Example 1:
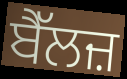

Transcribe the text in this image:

ਬੈੱਲਜ਼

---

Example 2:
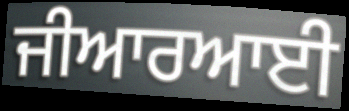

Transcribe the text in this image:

ਜੀਆਰਆਈ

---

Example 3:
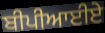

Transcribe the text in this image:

ਬੀਪੀਆਈਏ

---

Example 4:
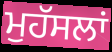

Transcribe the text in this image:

ਮੁਹੱਸਲਾਂ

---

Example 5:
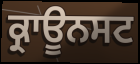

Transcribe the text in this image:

ਕ੍ਰਾਊਨਸਟ